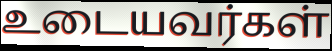
உடையவர்கள்